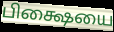
பிக்ஷையை